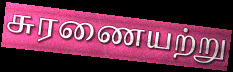
சுரணையற்று